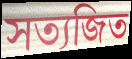
সত্যজিত